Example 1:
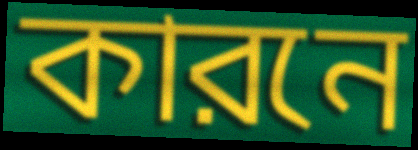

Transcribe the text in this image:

কারনে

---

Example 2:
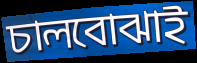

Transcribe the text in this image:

চালবোঝাই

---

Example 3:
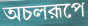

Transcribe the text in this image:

অচলরূপে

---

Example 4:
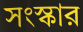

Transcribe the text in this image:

সংস্কার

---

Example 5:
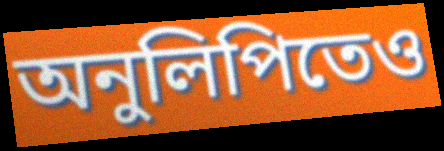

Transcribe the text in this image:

অনুলিপিতেও